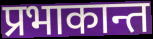
प्रभाकान्त